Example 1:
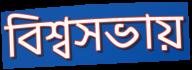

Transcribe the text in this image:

বিশ্বসভায়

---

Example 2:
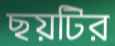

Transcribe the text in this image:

ছয়টির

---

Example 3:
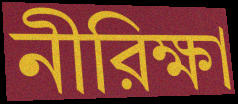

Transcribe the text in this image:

নীরিক্ষা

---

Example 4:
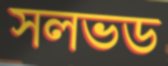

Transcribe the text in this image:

সলভড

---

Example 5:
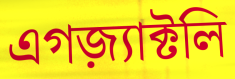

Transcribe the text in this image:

এগজ়্যাক্টলি